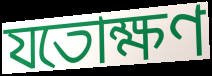
যতোক্ষণ